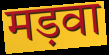
मड़वा